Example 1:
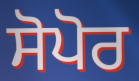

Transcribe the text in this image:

ਸੋਪੋਰ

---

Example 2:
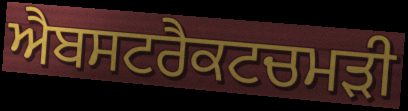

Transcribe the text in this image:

ਐਬਸਟਰੈਕਟਚਮੜੀ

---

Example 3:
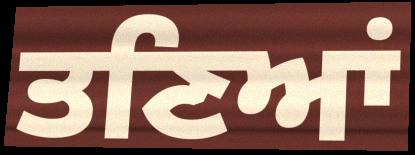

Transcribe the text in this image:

ਤਣਿਆਂ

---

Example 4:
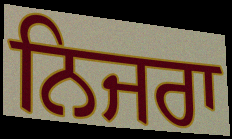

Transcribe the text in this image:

ਨਿਜਰਾ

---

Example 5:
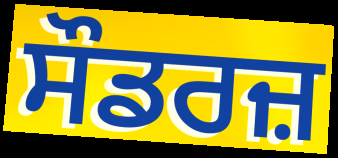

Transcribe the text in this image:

ਸੌਡਰਜ਼